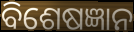
ବିଶେଷଜ୍ଞାନ